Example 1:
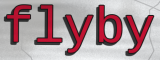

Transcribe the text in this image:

flyby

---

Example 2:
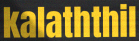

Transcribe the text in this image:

kalaththil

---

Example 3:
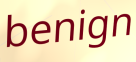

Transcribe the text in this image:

benign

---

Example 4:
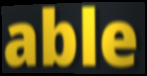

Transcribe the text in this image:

able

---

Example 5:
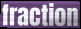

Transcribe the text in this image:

fraction